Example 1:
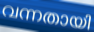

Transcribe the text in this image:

വന്നതായി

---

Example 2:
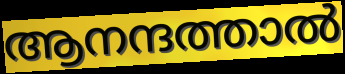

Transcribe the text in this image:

ആനന്ദത്താൽ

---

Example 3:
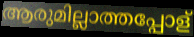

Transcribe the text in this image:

ആരുമില്ലാത്തപ്പോള്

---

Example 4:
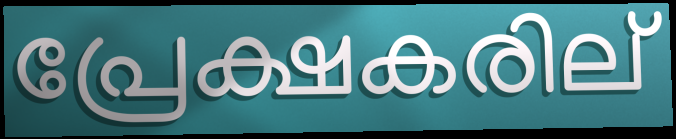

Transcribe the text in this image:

പ്രേക്ഷകരില്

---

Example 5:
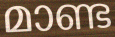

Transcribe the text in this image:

മാണ്ട